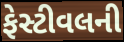
ફેસ્ટીવલની